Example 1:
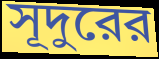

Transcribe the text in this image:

সূদুরের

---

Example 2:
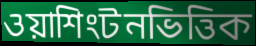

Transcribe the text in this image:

ওয়াশিংটনভিত্তিক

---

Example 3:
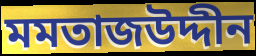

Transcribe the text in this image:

মমতাজউদ্দীন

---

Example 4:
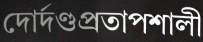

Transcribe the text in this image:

দোর্দণ্ডপ্রতাপশালী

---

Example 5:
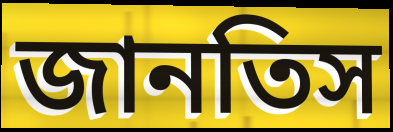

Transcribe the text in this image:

জানতিস